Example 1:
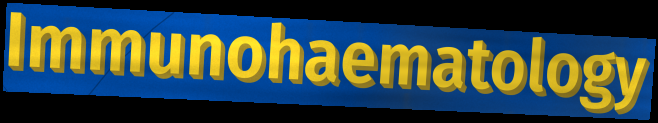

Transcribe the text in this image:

Immunohaematology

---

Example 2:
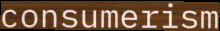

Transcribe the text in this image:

consumerism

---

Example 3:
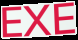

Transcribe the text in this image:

EXE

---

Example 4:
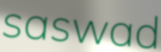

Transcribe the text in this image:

saswad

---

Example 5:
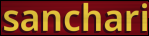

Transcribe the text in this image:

sanchari